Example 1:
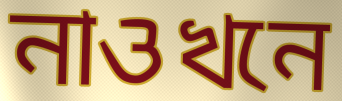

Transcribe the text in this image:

নাওখনে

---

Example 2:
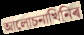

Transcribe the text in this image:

আলোচনাখিনিৰ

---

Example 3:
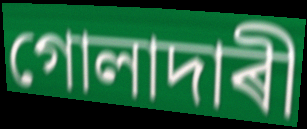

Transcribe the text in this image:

গোলাদাৰী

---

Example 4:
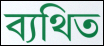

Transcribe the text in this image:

ব্যথিত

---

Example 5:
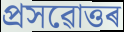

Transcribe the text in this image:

প্ৰসৱোত্তৰ